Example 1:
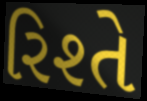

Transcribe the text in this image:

રિશ્તે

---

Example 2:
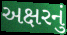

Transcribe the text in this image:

અક્ષરનું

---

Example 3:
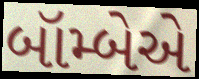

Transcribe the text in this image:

બૉમ્બેએ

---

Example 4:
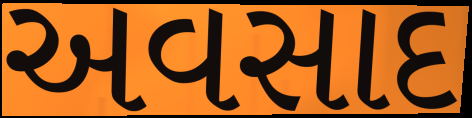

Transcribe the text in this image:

અવસાદ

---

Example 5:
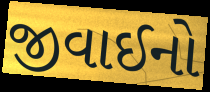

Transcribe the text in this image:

જીવાઈનો